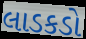
લાડકડો